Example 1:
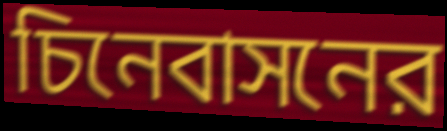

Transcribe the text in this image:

চিনেবাসনের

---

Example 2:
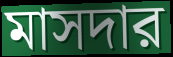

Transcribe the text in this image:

মাসদার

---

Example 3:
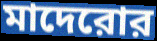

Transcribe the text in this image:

মাদেরোর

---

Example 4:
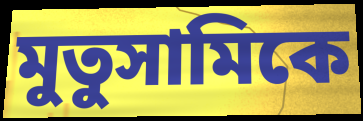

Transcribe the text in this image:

মুতুসামিকে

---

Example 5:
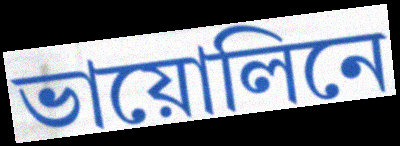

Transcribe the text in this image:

ভায়োলিনে